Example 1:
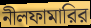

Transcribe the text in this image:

নীলফামারির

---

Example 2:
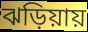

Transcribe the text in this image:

ঝড়িয়ায়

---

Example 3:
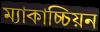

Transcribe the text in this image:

ম্যাকাচ্চিয়ন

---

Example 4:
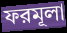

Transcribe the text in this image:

ফরমূলা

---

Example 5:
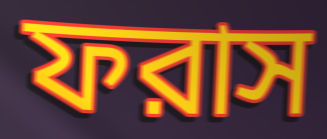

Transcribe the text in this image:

ফরাস